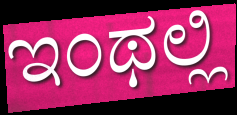
ಇಂಥಲ್ಲಿ